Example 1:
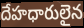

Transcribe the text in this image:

దేహధారులైన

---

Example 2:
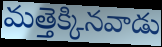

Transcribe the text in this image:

మత్తెక్కినవాడు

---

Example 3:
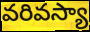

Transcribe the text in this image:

వరివస్యా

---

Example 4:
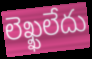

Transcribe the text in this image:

లెఖ్ఖలేదు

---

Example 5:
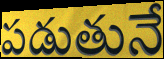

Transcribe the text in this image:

పడుతునే